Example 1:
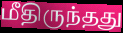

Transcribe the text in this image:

மீதிருந்தது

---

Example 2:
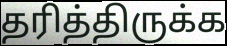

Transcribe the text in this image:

தரித்திருக்க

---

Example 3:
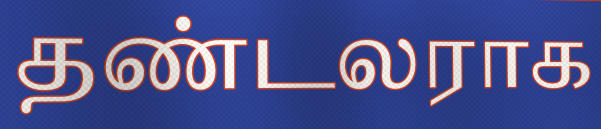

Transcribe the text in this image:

தண்டலராக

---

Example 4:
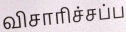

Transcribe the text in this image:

விசாரிச்சப்ப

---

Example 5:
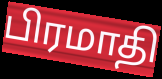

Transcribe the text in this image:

பிரமாதி